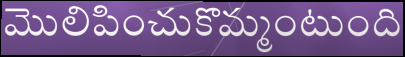
మొలిపించుకొమ్మంటుంది